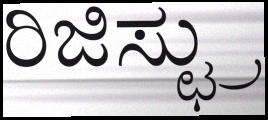
ರಿಜಿಸ್ಟ್ರು